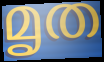
മൃത